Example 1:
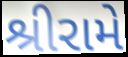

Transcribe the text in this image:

શ્રીરામે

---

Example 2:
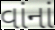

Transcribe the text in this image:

વાંનાં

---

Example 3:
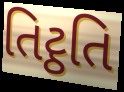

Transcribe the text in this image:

તિટ્ઠતિ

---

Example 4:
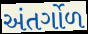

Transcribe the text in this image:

અંતર્ગોળ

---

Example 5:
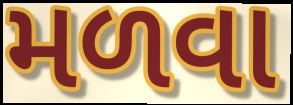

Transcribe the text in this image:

મળવા